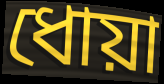
ধোয়া